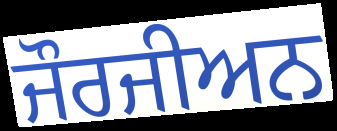
ਜੌਰਜੀਅਨ